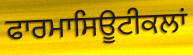
ਫਾਰਮਾਸਿਊਟੀਕਲਾਂ